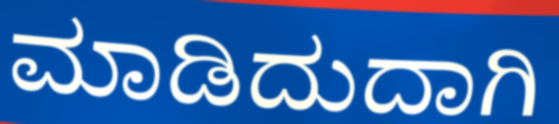
ಮಾಡಿದುದಾಗಿ